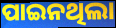
ପାଇନଥିଲା